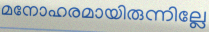
മനോഹരമായിരുന്നില്ലേ